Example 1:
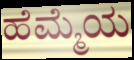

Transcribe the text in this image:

ಹೆಮ್ಮೆಯ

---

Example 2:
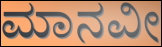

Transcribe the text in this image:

ಮಾನವೀ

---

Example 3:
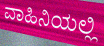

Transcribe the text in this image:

ವಾಹಿನಿಯಲ್ಲಿ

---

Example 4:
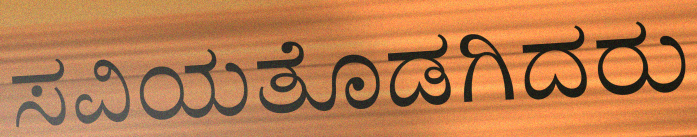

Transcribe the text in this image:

ಸವಿಯತೊಡಗಿದರು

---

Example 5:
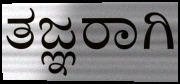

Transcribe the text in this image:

ತಜ್ಞರಾಗಿ